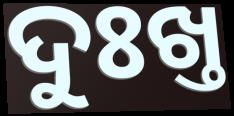
ଦୁଃଖ୍ତ